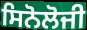
ਸਿਨੋਲੋਜੀ